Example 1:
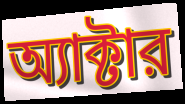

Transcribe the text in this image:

অ্যাক্টার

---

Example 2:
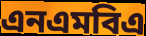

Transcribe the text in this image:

এনএমবিএ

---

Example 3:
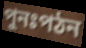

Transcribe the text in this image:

পুনঃপঠন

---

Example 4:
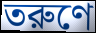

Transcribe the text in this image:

তরুণে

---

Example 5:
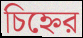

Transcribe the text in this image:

চিহ্নের